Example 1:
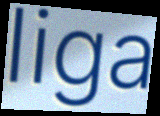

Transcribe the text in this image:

liga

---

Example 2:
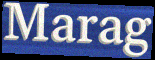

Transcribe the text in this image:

Marag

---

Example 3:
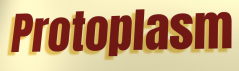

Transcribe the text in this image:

Protoplasm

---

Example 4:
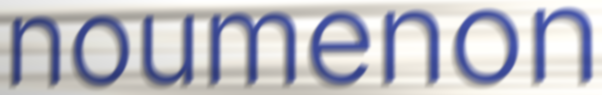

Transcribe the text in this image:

noumenon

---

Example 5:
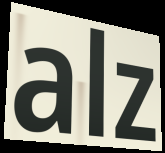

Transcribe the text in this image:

alz